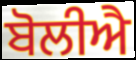
ਬੋਲੀਐ